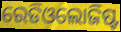
ରେଡିଓଲୋଜିଷ୍ଟ